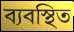
ব্যবস্থিত